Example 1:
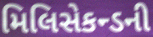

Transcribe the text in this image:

મિલિસેકન્ડની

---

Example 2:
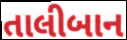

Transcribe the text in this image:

તાલીબાન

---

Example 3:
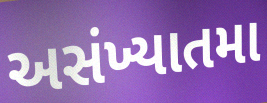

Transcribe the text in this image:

અસંખ્યાતમા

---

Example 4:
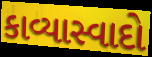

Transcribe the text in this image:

કાવ્યાસ્વાદો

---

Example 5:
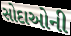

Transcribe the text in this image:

સોદાઓની